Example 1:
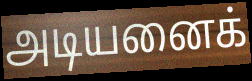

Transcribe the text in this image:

அடியனைக்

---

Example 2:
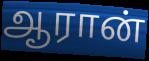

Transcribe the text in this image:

ஆரான்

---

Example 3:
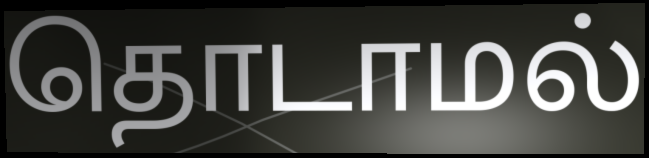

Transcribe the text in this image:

தொடாமல்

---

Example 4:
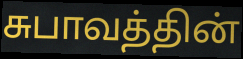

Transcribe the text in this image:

சுபாவத்தின்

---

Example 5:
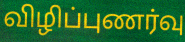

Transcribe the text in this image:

விழிப்புணர்வு